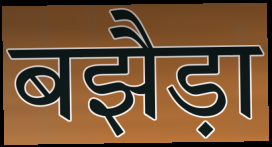
बझैड़ा